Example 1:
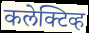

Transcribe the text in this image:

कलेक्टिव्ह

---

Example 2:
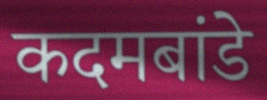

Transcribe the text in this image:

कदमबांडे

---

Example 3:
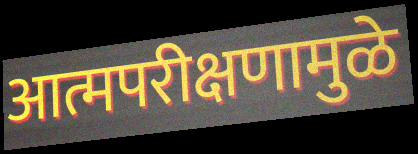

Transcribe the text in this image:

आत्मपरीक्षणामुळे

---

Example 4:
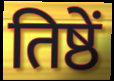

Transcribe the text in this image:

तिष्ठें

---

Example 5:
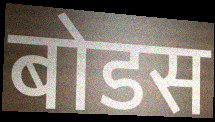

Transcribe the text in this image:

बोडस